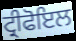
ਟ੍ਰੀਫੋਇਲ